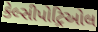
કેલ્સીપોટ્રિઓલ